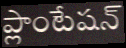
ప్లాంటేషన్